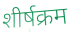
शीर्षक्रम